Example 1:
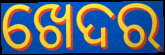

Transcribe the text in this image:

ଖେଦର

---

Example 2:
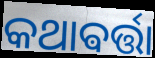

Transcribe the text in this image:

କଥାଵର୍ତ୍ତା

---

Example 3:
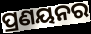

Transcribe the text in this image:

ପ୍ରଣୟନର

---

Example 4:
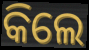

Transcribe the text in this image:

କିଲେ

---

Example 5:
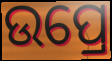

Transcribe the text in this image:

ଉପ୍ରେ